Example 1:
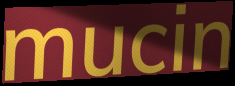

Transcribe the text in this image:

mucin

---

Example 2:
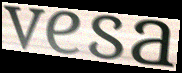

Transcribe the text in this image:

vesa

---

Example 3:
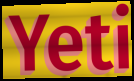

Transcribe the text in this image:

Yeti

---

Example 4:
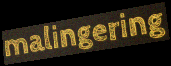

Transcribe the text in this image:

malingering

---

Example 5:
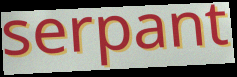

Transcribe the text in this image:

serpant